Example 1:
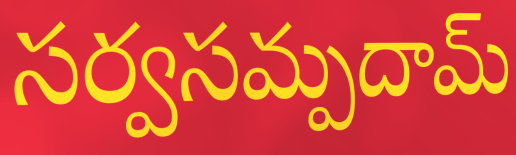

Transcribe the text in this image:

సర్వసమ్పదామ్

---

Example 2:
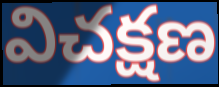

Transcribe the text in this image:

విచక్షణ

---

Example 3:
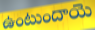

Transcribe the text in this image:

ఉంటుందాయె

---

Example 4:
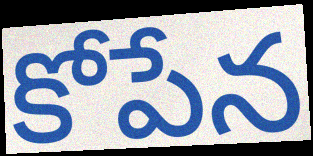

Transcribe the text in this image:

కోపేన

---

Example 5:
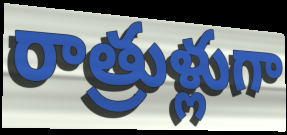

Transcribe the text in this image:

రాత్రుళ్లుగా